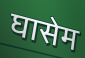
घासेम